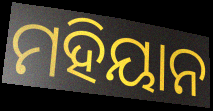
ମହିୟାନ